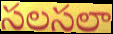
సలసలా